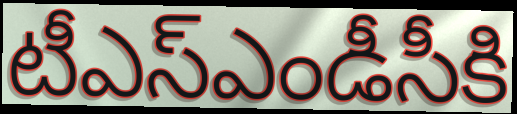
టీఎస్ఎండీసీకి